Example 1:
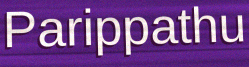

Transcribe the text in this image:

Parippathu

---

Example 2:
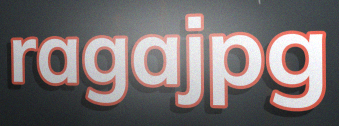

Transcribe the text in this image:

ragajpg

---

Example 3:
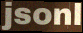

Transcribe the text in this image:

jsonl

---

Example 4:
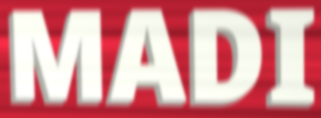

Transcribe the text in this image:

MADI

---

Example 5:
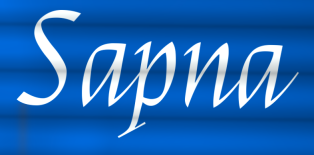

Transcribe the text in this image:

Sapna